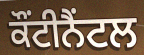
ਕੌਂਟੀਨੈਂਟਲ